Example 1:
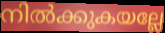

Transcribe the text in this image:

നിൽക്കുകയല്ലേ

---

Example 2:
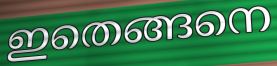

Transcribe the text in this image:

ഇതെങ്ങനെ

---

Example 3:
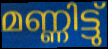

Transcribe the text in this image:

മണ്ണിട്ടു്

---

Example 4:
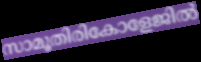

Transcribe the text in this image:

സാമൂതിരികോളേജിൽ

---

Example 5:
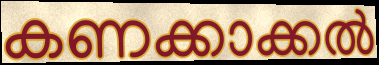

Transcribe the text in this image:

കണക്കാക്കൽ